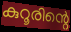
കുറൂരിന്റെ